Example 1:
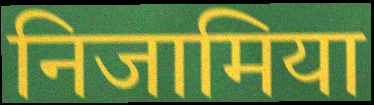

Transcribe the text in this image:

निजामिया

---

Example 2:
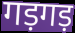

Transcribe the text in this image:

गड़गड़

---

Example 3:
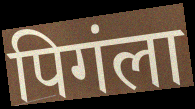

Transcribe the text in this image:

पिगंला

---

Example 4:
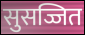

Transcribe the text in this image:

सुसज्जित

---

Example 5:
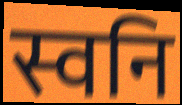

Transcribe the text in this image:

स्वनि